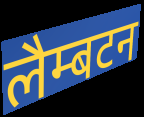
लैम्बटन